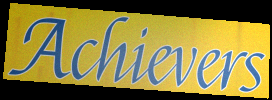
Achievers